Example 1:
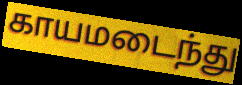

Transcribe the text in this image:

காயமடைந்து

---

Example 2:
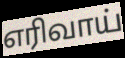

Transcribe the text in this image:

எரிவாய்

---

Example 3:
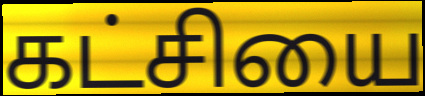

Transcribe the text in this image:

கட்சியை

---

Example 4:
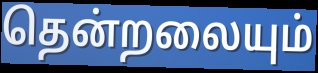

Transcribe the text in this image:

தென்றலையும்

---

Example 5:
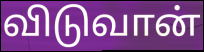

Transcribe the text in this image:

விடுவான்